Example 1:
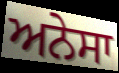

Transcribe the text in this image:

ਅਨੇਸਾ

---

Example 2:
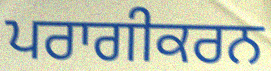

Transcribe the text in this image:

ਪਰਾਗੀਕਰਨ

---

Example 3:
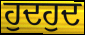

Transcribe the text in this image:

ਹੁਦਹੁਦ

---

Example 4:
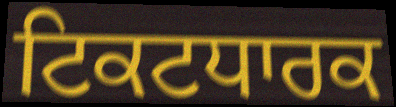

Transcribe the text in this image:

ਟਿਕਟਧਾਰਕ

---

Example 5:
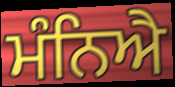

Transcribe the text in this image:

ਮੰਨਿਐ